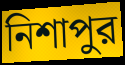
নিশাপুর